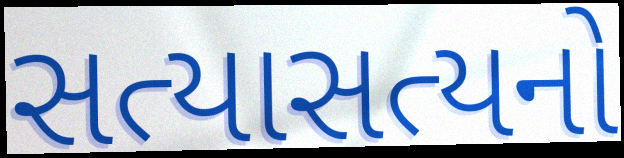
સત્યાસત્યનો